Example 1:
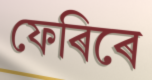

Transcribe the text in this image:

ফেৰিৰে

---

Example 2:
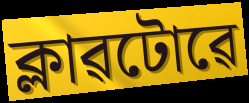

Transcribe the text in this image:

ক্লাৱটোৱে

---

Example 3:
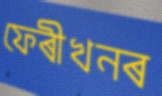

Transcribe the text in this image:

ফেৰীখনৰ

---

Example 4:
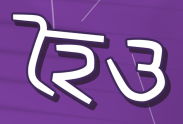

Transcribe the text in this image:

হৈও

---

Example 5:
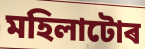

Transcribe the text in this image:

মহিলাটোৰ